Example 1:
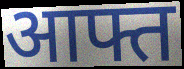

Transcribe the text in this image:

आफ्त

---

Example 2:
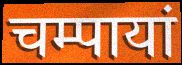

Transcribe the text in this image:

चम्पायां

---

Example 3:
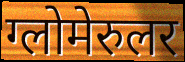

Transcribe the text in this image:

ग्लोमेरुलर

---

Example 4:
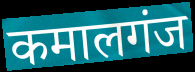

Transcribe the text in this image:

कमालगंज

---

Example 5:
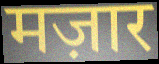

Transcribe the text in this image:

मज़ार